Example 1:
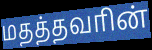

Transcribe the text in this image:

மதத்தவரின்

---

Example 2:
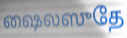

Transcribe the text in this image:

ஷைலஸுதே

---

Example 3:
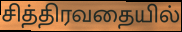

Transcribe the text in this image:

சித்திரவதையில்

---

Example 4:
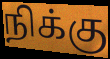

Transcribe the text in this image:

நிக்கு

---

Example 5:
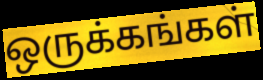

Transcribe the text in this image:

ஒருக்கங்கள்